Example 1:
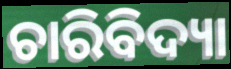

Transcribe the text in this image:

ଚାରିବିଦ୍ୟା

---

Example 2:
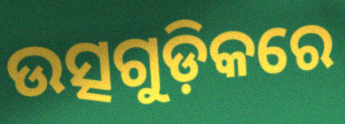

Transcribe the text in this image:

ଉତ୍ସଗୁଡ଼ିକରେ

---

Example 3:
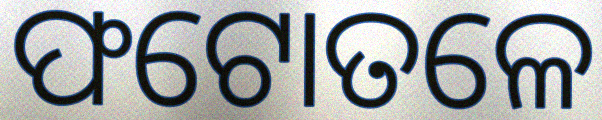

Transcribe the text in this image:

ଫଟୋତଳେ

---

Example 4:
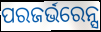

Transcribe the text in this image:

ପରଜର୍ଭରେନ୍ସ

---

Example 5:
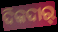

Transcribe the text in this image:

ଦିକଦାର୍